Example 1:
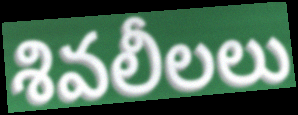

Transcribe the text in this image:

శివలీలలు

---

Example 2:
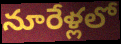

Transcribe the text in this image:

నూరేళ్లలో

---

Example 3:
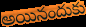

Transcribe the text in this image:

అయినందుకు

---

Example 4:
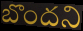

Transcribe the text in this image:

బొందని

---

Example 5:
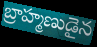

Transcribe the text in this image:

బ్రాహ్మణుడైన